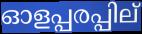
ഓളപ്പരപ്പില്